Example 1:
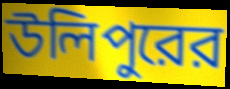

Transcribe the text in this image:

উলিপুরের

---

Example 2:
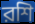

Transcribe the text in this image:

রশি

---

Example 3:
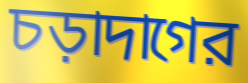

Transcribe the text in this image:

চড়াদাগের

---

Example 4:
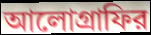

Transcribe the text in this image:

আলোগ্রাফির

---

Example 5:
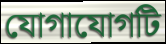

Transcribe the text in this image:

যোগাযোগটি